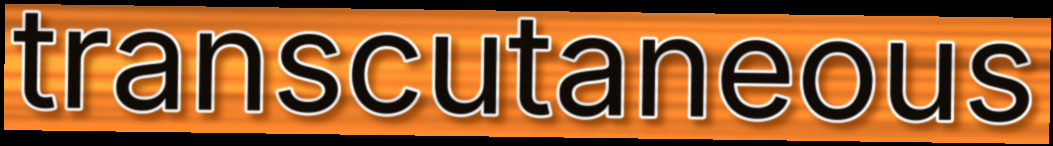
transcutaneous